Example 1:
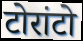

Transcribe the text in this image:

टोरांटो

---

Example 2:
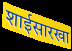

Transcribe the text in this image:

शाईसारखा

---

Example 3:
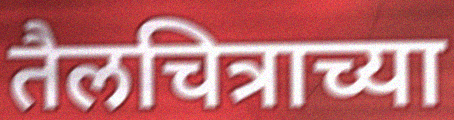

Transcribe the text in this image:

तैलचित्राच्या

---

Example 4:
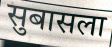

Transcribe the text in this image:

सुबासला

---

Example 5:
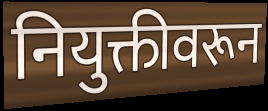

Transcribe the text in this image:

नियुक्तीवरून